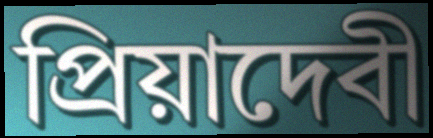
প্রিয়াদেবী